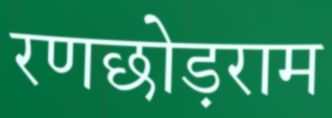
रणछोड़राम